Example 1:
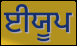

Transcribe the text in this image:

ਈਯੂਪ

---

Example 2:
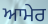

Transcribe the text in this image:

ਆਮੇਰ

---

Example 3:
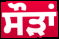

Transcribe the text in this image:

ਸੌੜਾਂ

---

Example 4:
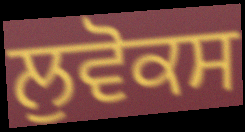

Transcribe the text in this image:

ਲੁਵੋਕਸ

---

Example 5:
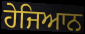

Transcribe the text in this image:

ਹੇਜਿਆਨ